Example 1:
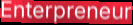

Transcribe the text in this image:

Enterpreneur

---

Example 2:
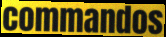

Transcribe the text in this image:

commandos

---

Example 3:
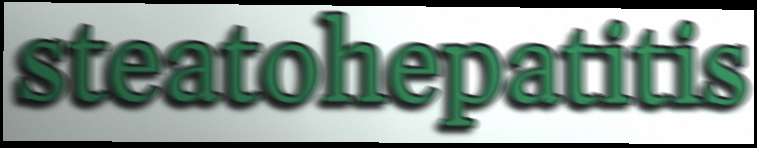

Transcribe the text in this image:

steatohepatitis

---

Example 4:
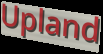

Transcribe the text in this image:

Upland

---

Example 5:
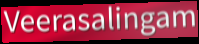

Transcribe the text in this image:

Veerasalingam